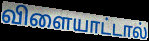
விளையாட்டால்